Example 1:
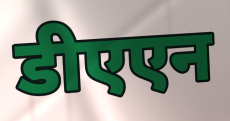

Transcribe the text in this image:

डीएएन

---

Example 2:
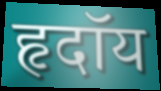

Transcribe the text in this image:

हृदॉय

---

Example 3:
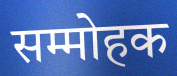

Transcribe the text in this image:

सम्मोहक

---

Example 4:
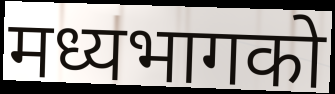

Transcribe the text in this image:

मध्यभागको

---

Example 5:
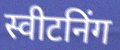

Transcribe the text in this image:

स्वीटनिंग